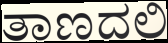
ತಾಣದಲಿ